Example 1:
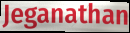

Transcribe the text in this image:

Jeganathan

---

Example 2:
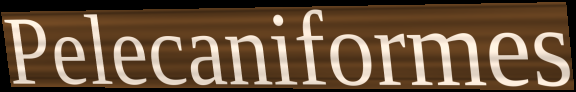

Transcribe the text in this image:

Pelecaniformes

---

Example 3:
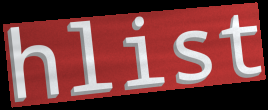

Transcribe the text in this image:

hlist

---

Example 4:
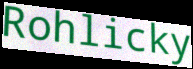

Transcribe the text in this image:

Rohlicky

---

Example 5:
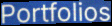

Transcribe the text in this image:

Portfolios